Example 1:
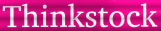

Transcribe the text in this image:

Thinkstock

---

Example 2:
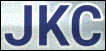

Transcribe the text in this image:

JKC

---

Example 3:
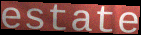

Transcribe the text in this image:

estate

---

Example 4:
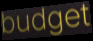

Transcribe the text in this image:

budget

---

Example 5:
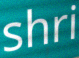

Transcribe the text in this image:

shri